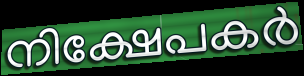
നിക്ഷേപകർ